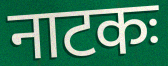
नाटकः